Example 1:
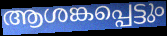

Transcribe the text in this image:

ആശങ്കപ്പെട്ടും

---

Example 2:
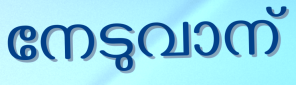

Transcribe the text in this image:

നേടുവാന്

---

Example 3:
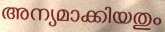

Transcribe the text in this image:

അന്യമാക്കിയതും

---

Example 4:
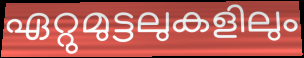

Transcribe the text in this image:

ഏറ്റുമുട്ടലുകളിലും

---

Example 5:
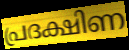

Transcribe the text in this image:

പ്രദക്ഷിണ